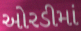
ઓરડીમાં